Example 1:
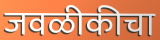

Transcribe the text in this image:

जवळीकीचा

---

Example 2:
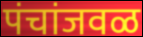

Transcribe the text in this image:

पंचांजवळ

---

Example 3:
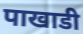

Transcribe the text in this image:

पाखाडी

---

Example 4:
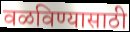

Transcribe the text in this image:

वळविण्यासाठी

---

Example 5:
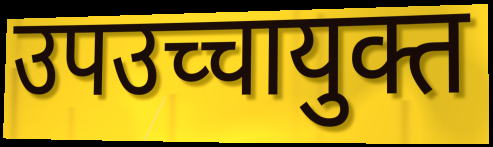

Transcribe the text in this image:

उपउच्चायुक्त